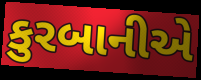
કુરબાનીએ